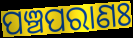
ପଞ୍ଚପରାଣଃ